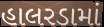
હાલરડામાં